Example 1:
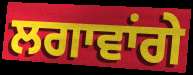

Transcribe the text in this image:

ਲਗਾਵਾਂਗੇ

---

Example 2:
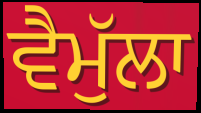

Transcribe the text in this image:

ਵੈਮੁੱਲਾ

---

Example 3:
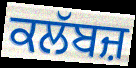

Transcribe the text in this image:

ਕਲੱਬਜ਼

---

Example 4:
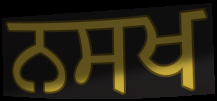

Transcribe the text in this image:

ਨਸਖ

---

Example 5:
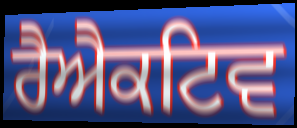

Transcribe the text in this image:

ਰੈਐਕਟਿਵ